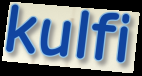
kulfi